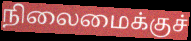
நிலைமைக்குச்